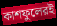
কাশফুলেরই